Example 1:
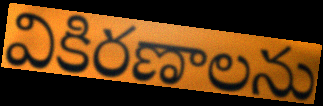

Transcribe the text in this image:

వికిరణాలను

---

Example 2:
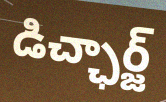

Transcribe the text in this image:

డిచ్ఛార్జ్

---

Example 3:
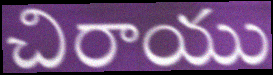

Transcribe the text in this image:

చిరాయు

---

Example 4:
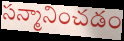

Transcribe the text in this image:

సన్మానించడం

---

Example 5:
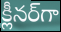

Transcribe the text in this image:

క్లీనర్‌గా